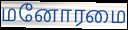
மனோரமை